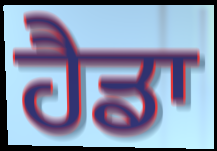
ਹੈਡਾ